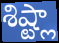
శిష్ట్లా